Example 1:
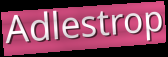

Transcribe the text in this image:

Adlestrop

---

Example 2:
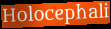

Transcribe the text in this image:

Holocephali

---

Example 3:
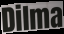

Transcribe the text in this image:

Dilma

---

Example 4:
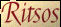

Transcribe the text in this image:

Ritsos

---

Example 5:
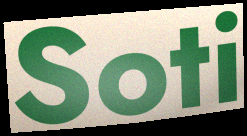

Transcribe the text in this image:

Soti